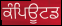
ਕੰਪਿਊਟਡ